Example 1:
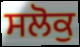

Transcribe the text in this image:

ਸਲੋਕੁ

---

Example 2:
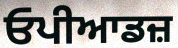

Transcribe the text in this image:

ਓਪੀਆਡਜ਼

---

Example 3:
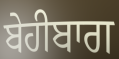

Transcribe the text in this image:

ਬੇਹੀਬਾਗ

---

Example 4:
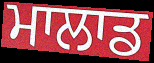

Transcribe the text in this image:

ਮਾਲਾਡ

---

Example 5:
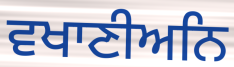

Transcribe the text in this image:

ਵਖਾਣੀਅਨਿ